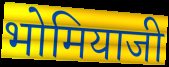
भोमियाजी